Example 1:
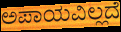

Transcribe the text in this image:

ಅಪಾಯವಿಲ್ಲದೆ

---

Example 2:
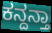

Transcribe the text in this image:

ಕನ್ದನ್ತಾ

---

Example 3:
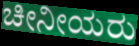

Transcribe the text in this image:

ಚೀನೀಯರು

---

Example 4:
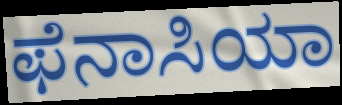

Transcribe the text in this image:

ಫೆನಾಸಿಯಾ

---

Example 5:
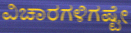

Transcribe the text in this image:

ವಿಚಾರಗಳಿಗಷ್ಟೇ